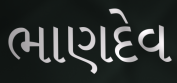
ભાણદેવ